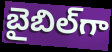
బైబిల్‌గా